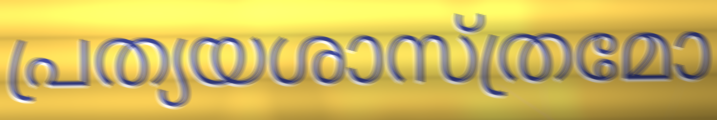
പ്രത്യയശാസ്ത്രമോ